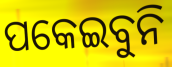
ପକେଇବୁନି